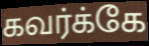
கவர்க்கே